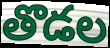
తొడల